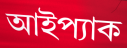
আইপ্যাক